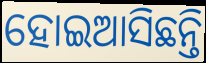
ହୋଇଆସିଛନ୍ତି